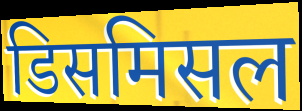
डिसमिसल